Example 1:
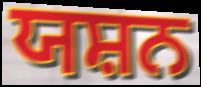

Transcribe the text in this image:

ਯਸ਼ਨ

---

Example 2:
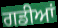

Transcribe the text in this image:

ਗਡੀਆਂ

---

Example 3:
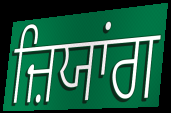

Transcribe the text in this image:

ਜ਼ਿਯਾਂਗ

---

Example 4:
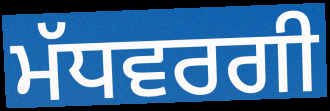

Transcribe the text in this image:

ਮੱਧਵਰਗੀ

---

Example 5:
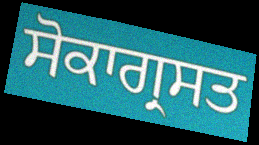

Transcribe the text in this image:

ਸੋਕਾਗ੍ਰਸਤ